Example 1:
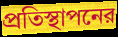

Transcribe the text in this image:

প্রতিস্থাপনের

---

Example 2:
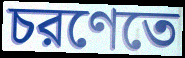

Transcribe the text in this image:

চরণেতে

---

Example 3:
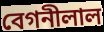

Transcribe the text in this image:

বেগনীলাল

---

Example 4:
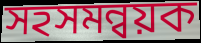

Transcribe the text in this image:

সহসমন্বয়ক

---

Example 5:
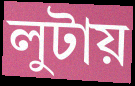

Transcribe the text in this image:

লুটায়